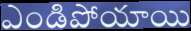
ఎండిపోయాయి